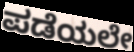
ಪಡೆಯಲೇ